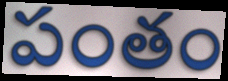
పంతం